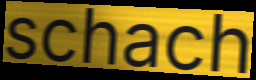
schach